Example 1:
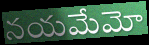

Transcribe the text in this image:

నయమేమో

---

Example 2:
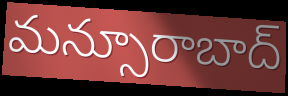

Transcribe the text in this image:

మన్సూరాబాద్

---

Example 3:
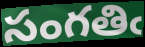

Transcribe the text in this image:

సంగతిఁ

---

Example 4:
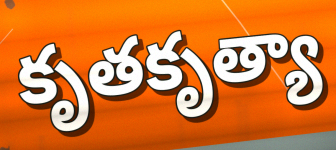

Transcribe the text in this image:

కృతకృత్యా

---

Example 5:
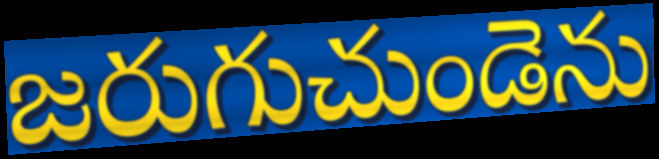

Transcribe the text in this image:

జరుగుచుండెను